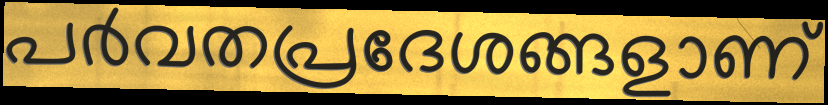
പർവതപ്രദേശങ്ങളാണ്